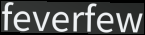
feverfew